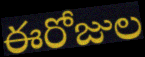
ఈరోజుల